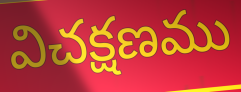
విచక్షణము